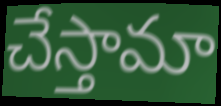
చేస్తామా